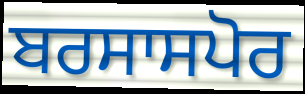
ਬਰਸਾਸਪੋਰ